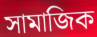
সামাজিক